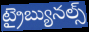
ట్రైబ్యునల్స్